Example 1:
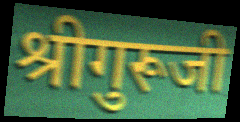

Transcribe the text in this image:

श्रीगुरूजी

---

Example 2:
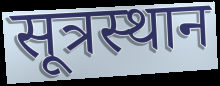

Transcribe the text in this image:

सूत्रस्थान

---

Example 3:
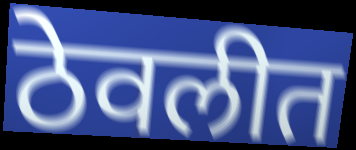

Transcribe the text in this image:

ठेवलीत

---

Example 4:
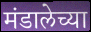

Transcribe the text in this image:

मंडालेच्या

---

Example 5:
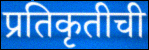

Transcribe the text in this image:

प्रतिकृतीची